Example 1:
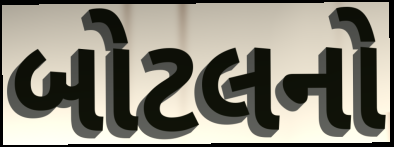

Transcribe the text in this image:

બોટલનો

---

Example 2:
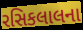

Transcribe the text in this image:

રસિકલાલના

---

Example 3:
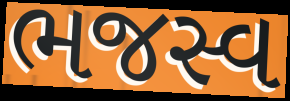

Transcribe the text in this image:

ભજસ્વ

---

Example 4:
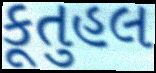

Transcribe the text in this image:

કૂતુહલ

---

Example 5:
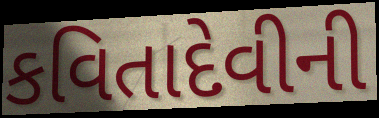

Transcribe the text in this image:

કવિતાદેવીની